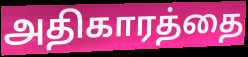
அதிகாரத்தை